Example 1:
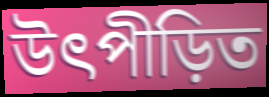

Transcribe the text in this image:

উৎপীড়িত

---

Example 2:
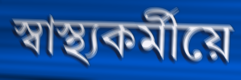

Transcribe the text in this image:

স্বাস্থ্যকৰ্মীয়ে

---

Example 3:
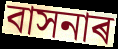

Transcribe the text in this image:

বাসনাৰ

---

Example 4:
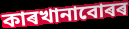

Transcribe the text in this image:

কাৰখানাবোৰৰ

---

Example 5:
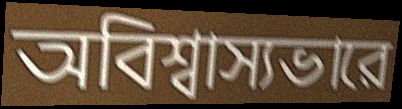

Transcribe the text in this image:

অবিশ্বাস্যভাৱে